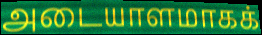
அடையாளமாகக்